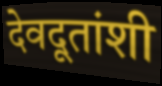
देवदूतांशी